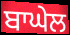
ਬਾਘੇਲ